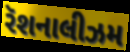
રૅશનાલીઝમ